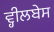
ਵ੍ਹੀਲਬੇਸ